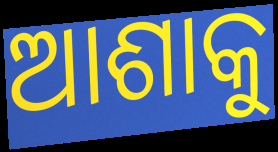
ଆଶାକୁ